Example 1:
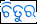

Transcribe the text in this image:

ଚିତୁର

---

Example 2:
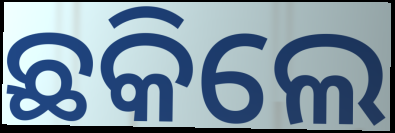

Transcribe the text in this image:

ଛକିଲେ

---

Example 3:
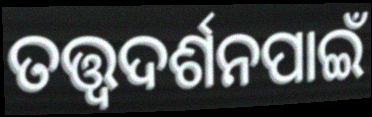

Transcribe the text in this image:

ତତ୍ତ୍ଵଦର୍ଶନପାଇଁ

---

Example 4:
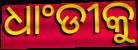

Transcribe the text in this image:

ଧାଂଡୀକୁ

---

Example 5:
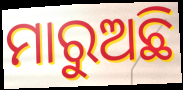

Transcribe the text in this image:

ମାରୁଅଛି